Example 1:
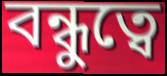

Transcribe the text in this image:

বন্ধুত্বে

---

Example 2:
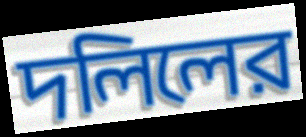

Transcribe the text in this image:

দলিলের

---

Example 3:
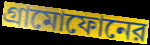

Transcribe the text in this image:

গ্রামোফোনের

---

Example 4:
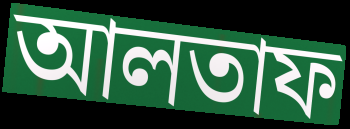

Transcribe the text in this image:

আলতাফ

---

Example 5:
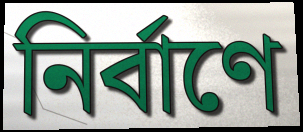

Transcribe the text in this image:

নির্বাণে